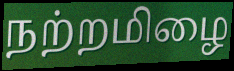
நற்றமிழை